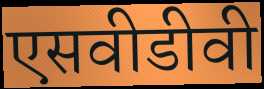
एसवीडीवी